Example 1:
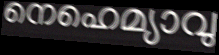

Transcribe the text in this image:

നെഹെമ്യാവു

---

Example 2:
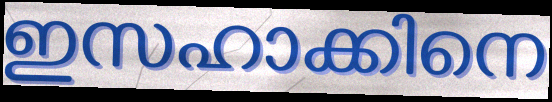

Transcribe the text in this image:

ഇസഹാക്കിനെ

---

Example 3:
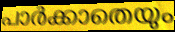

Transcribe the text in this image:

പാർക്കാതെയും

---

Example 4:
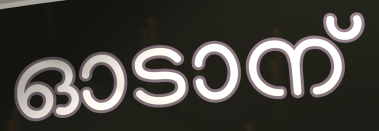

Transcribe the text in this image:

ഓടാന്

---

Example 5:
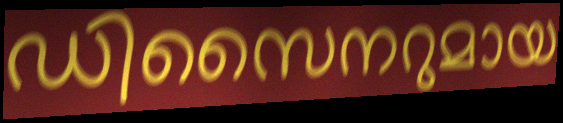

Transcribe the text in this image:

ഡിസൈനറുമായ